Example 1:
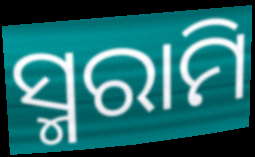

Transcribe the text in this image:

ସ୍ମରାମି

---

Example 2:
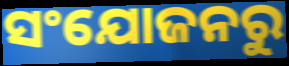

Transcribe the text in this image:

ସଂଯୋଜନରୁ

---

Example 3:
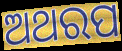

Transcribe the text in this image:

ଅଥରପ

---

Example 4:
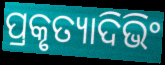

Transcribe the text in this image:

ପ୍ରକୃତ୍ୟାଦିଭିଂ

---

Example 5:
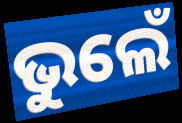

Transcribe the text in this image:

ଭୁଲେଁ